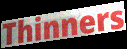
Thinners